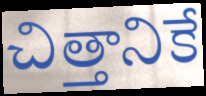
చిత్తానికే